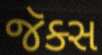
જૅક્સ